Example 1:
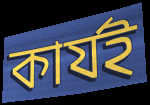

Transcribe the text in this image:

কার্যই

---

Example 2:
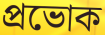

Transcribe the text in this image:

প্রভোক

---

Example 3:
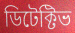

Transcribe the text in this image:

ডিটেক্টিভ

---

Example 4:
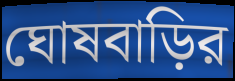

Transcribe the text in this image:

ঘোষবাড়ির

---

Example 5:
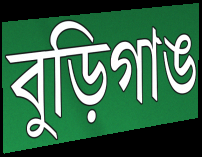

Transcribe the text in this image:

বুড়িগাঙ